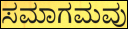
ಸಮಾಗಮವು